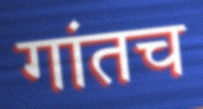
गांतच